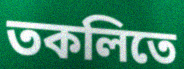
তকলিতে